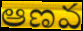
ఆణవ